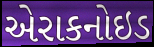
એરાકનોઇડ